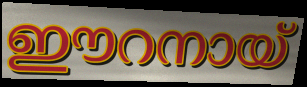
ഈറനായ്